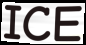
ICE